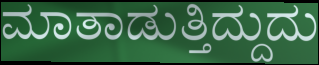
ಮಾತಾಡುತ್ತಿದ್ದುದು